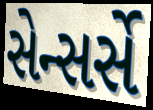
સેન્સર્સે